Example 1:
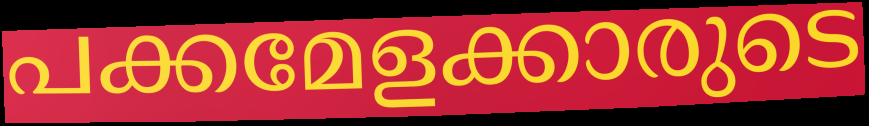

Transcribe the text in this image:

പക്കമേളക്കാരുടെ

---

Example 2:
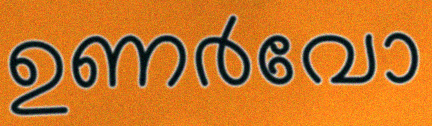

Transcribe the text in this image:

ഉണർവോ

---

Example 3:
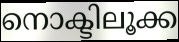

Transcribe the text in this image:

നൊക്ടിലൂക്ക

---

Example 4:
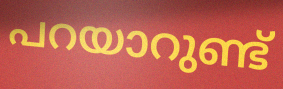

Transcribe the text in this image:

പറയാറുണ്ട്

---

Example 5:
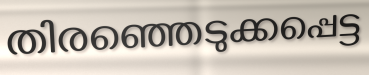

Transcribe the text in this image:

തിരഞ്ഞെടുക്കപ്പെട്ട